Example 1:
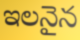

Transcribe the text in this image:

ఇలనైన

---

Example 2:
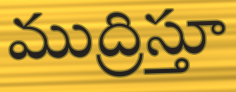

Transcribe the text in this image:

ముద్రిస్తూ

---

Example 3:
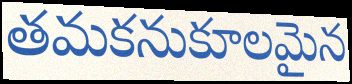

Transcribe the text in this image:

తమకనుకూలమైన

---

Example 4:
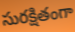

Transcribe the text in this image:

సురక్షితంగా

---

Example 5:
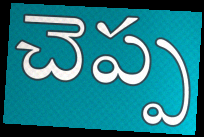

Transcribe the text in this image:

చెప్ప